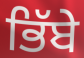
ਭਿੱਬੇ